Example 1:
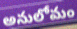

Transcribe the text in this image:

అనులోమం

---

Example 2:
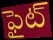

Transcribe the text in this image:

ఫైట్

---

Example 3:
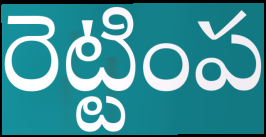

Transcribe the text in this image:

రెట్టింప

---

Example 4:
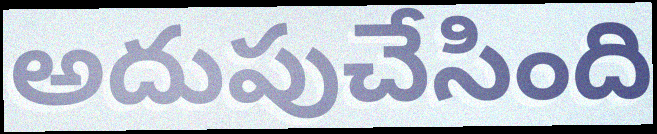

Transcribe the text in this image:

అదుపుచేసింది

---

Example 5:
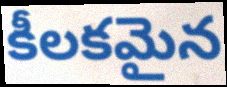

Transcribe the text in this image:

కీలకమైన